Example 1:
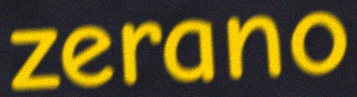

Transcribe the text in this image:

zerano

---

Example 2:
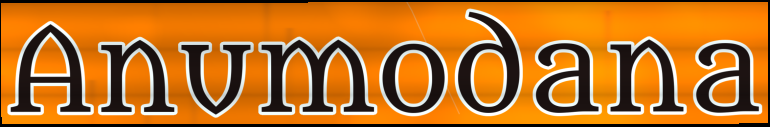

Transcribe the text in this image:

Anumodana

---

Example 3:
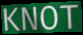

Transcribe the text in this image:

KNOT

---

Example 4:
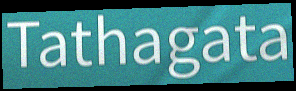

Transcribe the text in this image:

Tathagata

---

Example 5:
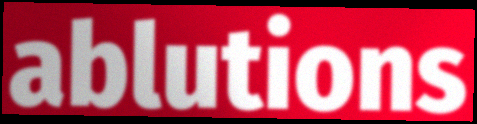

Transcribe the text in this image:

ablutions